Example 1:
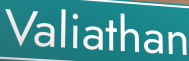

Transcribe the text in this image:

Valiathan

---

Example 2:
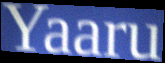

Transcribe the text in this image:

Yaaru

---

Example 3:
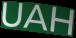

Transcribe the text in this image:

UAH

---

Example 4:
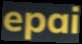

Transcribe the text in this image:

epai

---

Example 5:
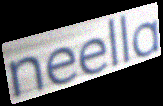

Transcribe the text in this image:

neella